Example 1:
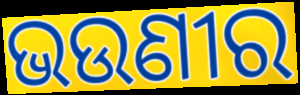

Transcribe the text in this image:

ଭଉଣୀର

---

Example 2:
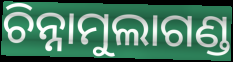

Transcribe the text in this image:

ଚିନ୍ନାମୁଲାଗଣ୍ଡ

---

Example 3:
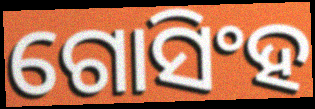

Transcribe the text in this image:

ଗୋସିଂହ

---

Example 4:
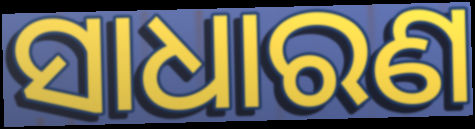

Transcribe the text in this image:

ସାଧାରଣ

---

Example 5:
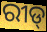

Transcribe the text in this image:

ରୀଡ୍